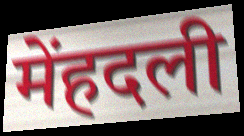
मेंहदली